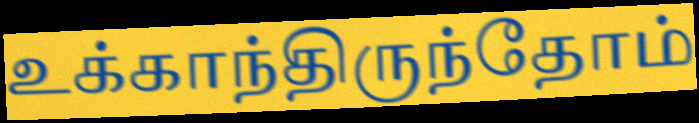
உக்காந்திருந்தோம்